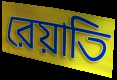
রেয়াতি